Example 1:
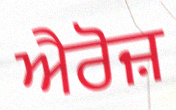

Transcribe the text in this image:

ਐਰੋਜ਼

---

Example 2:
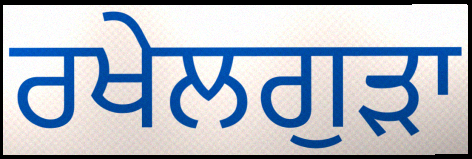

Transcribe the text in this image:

ਰਖੇਲਗੁੜਾ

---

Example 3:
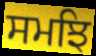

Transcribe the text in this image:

ਸਮਝਿ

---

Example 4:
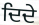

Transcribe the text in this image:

ਦਿਦੇ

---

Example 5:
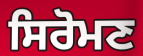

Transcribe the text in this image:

ਸਿਰੋਮਣ